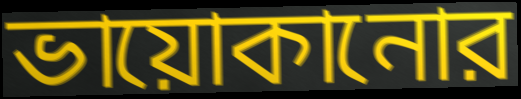
ভায়োকানোর